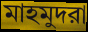
মাহমুদরা